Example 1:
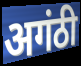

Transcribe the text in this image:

अगंठी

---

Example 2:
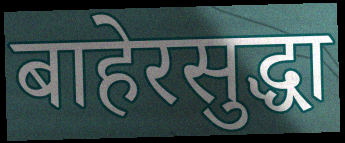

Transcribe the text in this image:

बाहेरसुद्धा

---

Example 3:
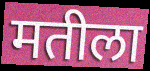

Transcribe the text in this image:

मतीला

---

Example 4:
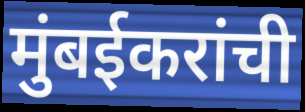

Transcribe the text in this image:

मुंबईकरांची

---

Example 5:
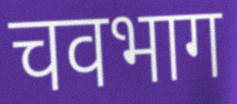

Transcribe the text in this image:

चवभाग